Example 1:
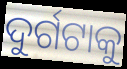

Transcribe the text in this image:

ଦୁର୍ଗଟାକୁ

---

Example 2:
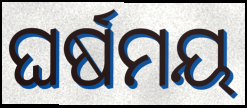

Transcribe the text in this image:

ଘର୍ଷମୟ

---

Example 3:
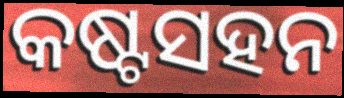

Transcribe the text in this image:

କଷ୍ଟସହନ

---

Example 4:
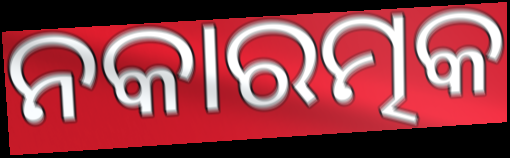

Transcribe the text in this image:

ନକାରତ୍ମକ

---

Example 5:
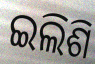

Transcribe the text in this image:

ଇଲିଶି